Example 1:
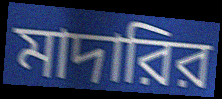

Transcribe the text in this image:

মাদারির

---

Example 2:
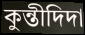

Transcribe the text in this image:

কুন্তীদিদা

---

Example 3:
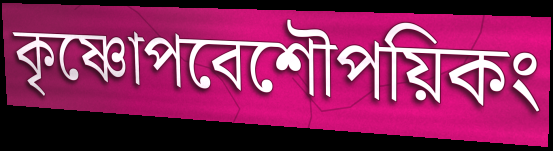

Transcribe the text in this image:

কৃষ্ণোপবেশৌপয়িকং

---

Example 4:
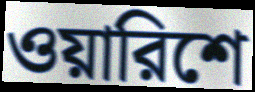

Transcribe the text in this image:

ওয়ারিশে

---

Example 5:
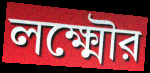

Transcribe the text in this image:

লক্ষ্মৌর